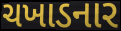
ચખાડનાર